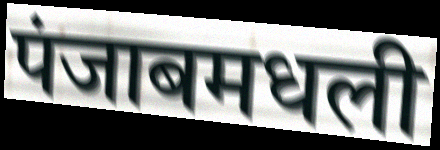
पंजाबमधली